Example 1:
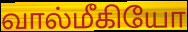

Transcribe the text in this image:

வால்மீகியோ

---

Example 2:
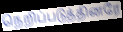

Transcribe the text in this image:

நெறிப்படுத்தினரே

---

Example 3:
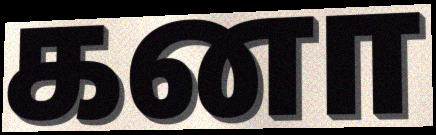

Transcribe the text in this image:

கனா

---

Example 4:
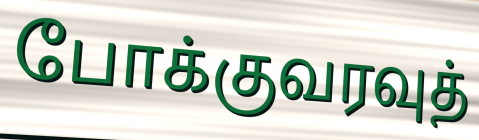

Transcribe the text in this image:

போக்குவரவுத்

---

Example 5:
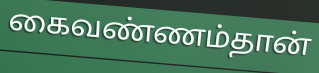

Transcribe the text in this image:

கைவண்ணம்தான்